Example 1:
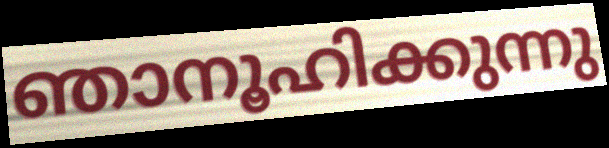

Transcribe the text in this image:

ഞാനൂഹിക്കുന്നു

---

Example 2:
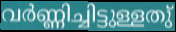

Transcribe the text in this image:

വർണ്ണിച്ചിട്ടുള്ളതു്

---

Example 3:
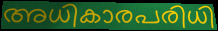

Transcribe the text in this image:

അധികാരപരിധി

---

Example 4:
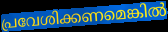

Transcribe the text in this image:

പ്രവേശിക്കണമെങ്കിൽ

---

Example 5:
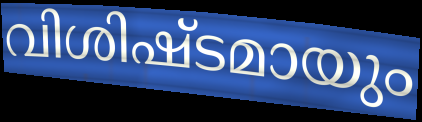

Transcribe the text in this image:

വിശിഷ്ടമായും